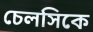
চেলসিকে